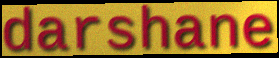
darshane